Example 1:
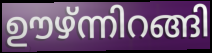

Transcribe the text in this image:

ഊഴ്ന്നിറങ്ങി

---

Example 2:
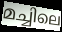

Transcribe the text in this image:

മച്ചിലെ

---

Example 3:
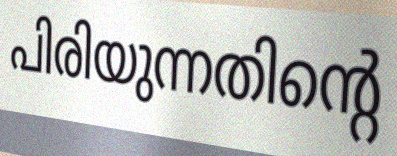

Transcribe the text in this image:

പിരിയുന്നതിന്റെ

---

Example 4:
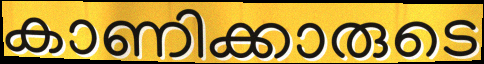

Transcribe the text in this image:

കാണിക്കാരുടെ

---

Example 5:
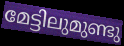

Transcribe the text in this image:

മേട്ടിലുമുണ്ടു